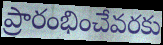
ప్రారంభించేవరకు